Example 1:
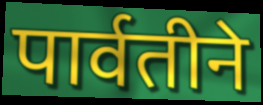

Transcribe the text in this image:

पार्वतीने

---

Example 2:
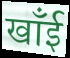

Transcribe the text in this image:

खाँई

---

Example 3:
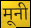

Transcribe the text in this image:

मूनी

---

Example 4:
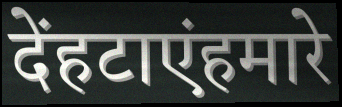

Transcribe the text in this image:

देंहटाएंहमारे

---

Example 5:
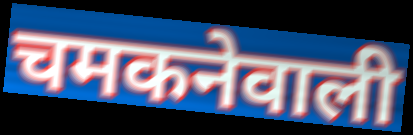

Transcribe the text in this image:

चमकनेवाली